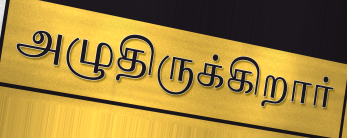
அழுதிருக்கிறார்